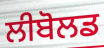
ਲੀਬੋਲਡ